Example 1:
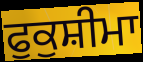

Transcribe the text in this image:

ਫੁਕੁਸ਼ੀਮਾ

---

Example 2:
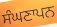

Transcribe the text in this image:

ਸੰਘਣਾਪਨ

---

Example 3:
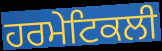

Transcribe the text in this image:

ਹਰਮੇਟਿਕਲੀ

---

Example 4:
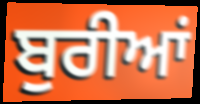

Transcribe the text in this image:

ਬੁਰੀਆਂ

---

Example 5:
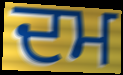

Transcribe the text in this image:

ਦਮ